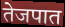
तेजपात